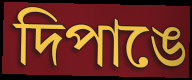
দিপাঙে